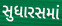
સુધારસમાં